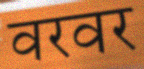
वरवर